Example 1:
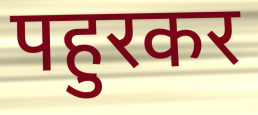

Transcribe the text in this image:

पहुरकर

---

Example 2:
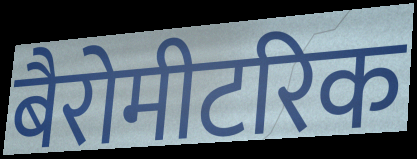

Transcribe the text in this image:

बैरोमीटरिक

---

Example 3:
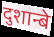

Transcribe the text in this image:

दुशान्बे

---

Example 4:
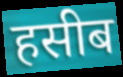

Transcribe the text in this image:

हसीब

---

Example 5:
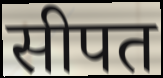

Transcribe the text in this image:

सीपत